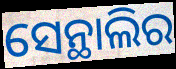
ସେନ୍ଥାଲିର